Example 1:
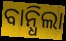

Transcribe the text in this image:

ବାନ୍ଧିଲା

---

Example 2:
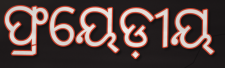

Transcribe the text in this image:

ଫ୍ରୟେଡ଼ୀୟ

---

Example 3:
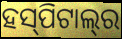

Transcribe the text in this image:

ହସ୍‍ପିଟାଲ୍‍ର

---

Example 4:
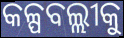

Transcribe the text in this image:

କଳ୍ପବଲ୍ଲୀକୁ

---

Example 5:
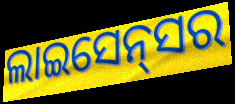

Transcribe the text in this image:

ଲାଇସେନ୍‌ସର